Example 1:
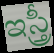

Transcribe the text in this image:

ఇస్త్రీ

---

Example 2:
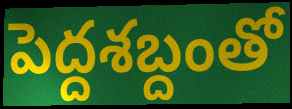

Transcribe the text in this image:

పెద్దశబ్దంతో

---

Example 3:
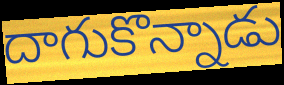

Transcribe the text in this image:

దాగుకొన్నాడు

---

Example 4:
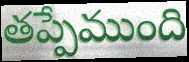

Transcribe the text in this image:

తప్పేముంది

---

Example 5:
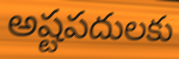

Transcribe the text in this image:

అష్టపదులకు